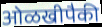
ओळखीपैकी